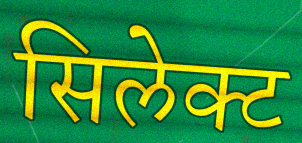
सिलेक्ट